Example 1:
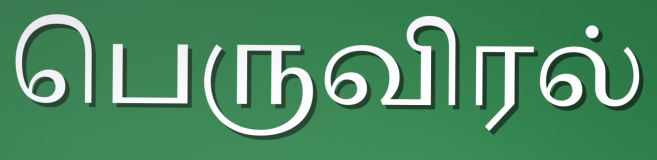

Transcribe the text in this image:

பெருவிரல்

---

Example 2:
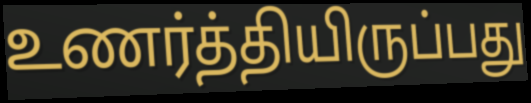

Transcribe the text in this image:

உணர்த்தியிருப்பது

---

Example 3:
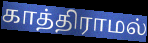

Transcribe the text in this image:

காத்திராமல்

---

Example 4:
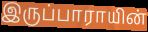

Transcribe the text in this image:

இருப்பாராயின்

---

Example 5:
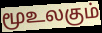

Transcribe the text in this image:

மூஉலகும்